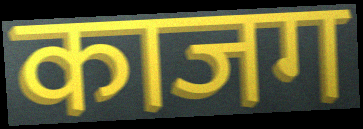
काजग